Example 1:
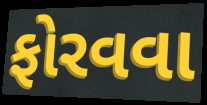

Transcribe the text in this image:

ફોરવવા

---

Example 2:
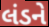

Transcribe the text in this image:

લંડને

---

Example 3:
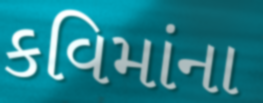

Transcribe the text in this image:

કવિમાંના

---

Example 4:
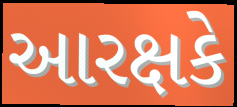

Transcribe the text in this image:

આરક્ષકે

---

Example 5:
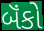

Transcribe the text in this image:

બૅંકો